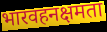
भारवहनक्षमता